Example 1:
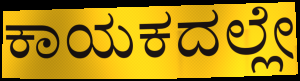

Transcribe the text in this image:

ಕಾಯಕದಲ್ಲೇ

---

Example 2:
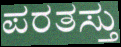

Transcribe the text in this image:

ಪರತಸ್ತು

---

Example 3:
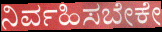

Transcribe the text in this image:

ನಿರ್ವಹಿಸಬೇಕೇ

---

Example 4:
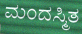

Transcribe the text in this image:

ಮಂದಸ್ಮಿತ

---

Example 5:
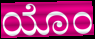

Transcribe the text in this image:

ಯೊಂ